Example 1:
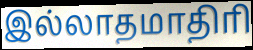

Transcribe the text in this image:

இல்லாதமாதிரி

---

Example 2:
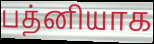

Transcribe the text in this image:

பத்னியாக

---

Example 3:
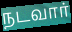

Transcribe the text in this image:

நடவார்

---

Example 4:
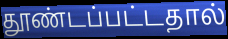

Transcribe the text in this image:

தூண்டப்பட்டதால்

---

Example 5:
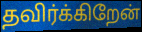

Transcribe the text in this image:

தவிர்க்கிறேன்